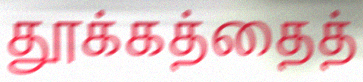
தூக்கத்தைத்